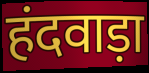
हंदवाड़ा